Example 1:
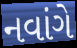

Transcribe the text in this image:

નવાંગે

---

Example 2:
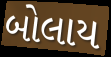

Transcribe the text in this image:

બોલાય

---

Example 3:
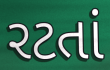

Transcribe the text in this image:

રટતાં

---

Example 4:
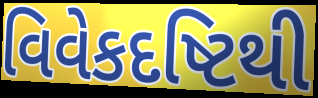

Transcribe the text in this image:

વિવેકદષ્ટિથી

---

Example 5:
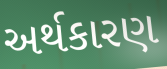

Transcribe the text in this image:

અર્થકારણ